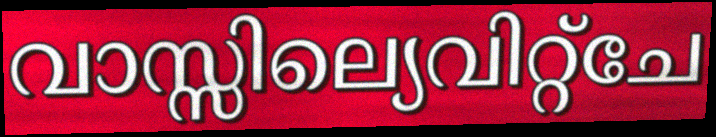
വാസ്സില്യെവിറ്റ്ചേ